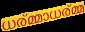
ധര്മ്മാധര്മ്മ